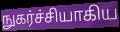
நுகர்ச்சியாகிய